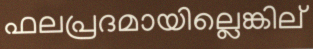
ഫലപ്രദമായില്ലെങ്കില്